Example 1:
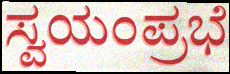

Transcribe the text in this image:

ಸ್ವಯಂಪ್ರಭೆ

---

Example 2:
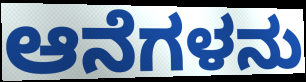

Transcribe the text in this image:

ಆನೆಗಳನು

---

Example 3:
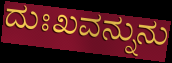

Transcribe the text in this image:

ದುಃಖವನ್ನುನು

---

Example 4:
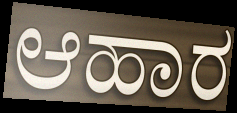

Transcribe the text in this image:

ಆಹಾರ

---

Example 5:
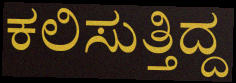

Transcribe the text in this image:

ಕಲಿಸುತ್ತಿದ್ದ